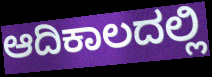
ಆದಿಕಾಲದಲ್ಲಿ